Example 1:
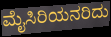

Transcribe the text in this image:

ಮೈಸಿರಿಯನರಿದು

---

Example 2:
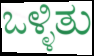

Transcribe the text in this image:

ಒಳ್ಳಿತು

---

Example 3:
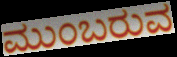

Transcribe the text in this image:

ಮುಂಬರುವ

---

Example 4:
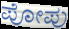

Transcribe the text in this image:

ಪೋಪು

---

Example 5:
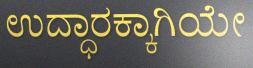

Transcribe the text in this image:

ಉದ್ಧಾರಕ್ಕಾಗಿಯೇ